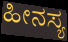
ಹೀನಸ್ಯ